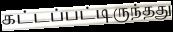
கட்டப்பட்டிருந்தது